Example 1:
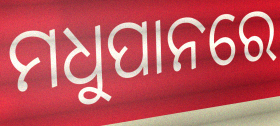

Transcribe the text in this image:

ମଧୁପାନରେ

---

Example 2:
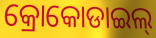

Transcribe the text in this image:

କ୍ରୋକୋଡାଇଲ୍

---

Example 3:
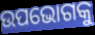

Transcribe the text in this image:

ଉପଭୋଗକୁ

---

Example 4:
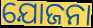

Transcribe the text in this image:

ଯୋଜନା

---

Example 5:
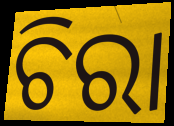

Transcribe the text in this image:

ଚିରା